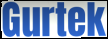
Gurtek